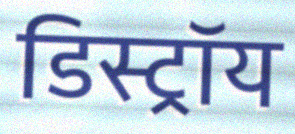
डिस्ट्रॉय